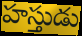
హస్తుడు